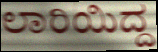
ಲಾರಿಯಿದ್ದ